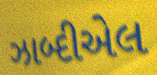
ઝાબ્દીએલ